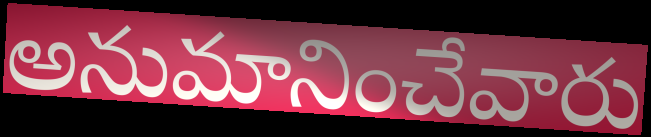
అనుమానించేవారు